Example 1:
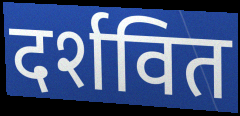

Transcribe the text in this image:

दर्शवित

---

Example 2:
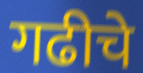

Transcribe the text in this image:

गढीचे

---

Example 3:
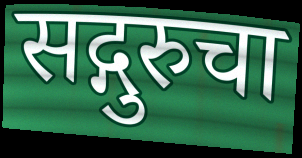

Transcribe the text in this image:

सद्गुरुचा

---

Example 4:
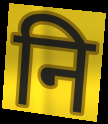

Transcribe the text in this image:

नि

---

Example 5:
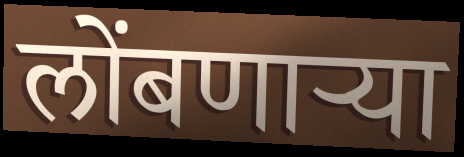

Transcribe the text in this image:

लोंबणार्‍या